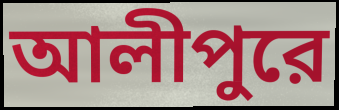
আলীপুরে